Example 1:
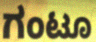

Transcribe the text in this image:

ಗಂಟೂ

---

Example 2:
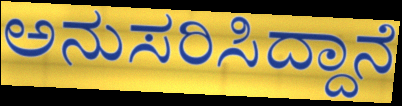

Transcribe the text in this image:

ಅನುಸರಿಸಿದ್ದಾನೆ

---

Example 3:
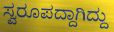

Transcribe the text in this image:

ಸ್ವರೂಪದ್ದಾಗಿದ್ದು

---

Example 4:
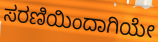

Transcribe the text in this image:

ಸರಣಿಯಿಂದಾಗಿಯೇ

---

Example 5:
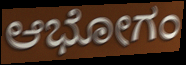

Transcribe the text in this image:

ಆಭೋಗಂ